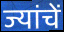
ज्यांचें